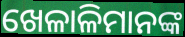
ଖେଳାଳିମାନଙ୍କ